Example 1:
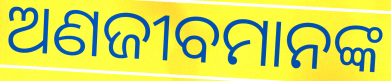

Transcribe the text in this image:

ଅଣଜୀବମାନଙ୍କ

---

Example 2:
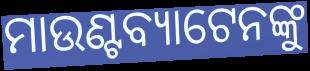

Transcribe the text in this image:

ମାଉଣ୍ଟବ୍ୟାଟେନଙ୍କୁ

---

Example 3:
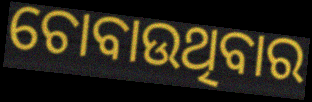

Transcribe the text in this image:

ଚୋବାଉଥିବାର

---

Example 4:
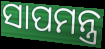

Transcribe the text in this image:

ସାପମନ୍ତ୍ର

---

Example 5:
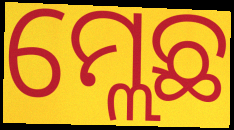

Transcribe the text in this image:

ମ୍ଲେଛ